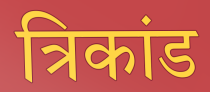
त्रिकांड